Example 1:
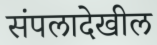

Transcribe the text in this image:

संपलादेखील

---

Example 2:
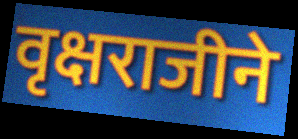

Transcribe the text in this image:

वृक्षराजीने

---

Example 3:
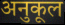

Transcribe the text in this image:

अनुकूल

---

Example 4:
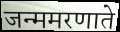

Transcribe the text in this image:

जन्ममरणाते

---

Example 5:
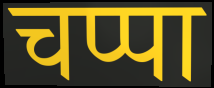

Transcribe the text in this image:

चप्पा